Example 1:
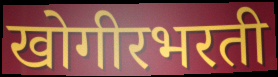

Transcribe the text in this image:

खोगीरभरती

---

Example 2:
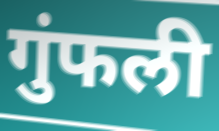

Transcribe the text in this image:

गुंफली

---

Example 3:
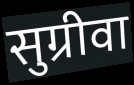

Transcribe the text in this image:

सुग्रीवा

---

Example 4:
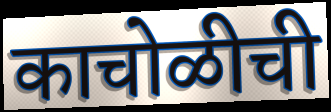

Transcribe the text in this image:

काचोळीची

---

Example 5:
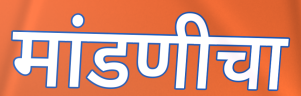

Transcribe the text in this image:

मांडणीचा